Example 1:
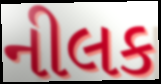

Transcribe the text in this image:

નીલક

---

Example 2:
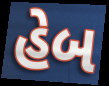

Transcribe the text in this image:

હેબ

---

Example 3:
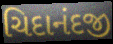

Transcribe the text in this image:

ચિદાનંદજી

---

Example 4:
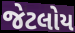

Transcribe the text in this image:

જેટલોય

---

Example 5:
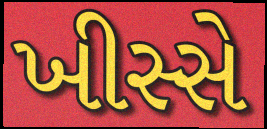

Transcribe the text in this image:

ખીસ્સે